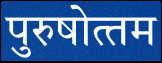
पुरुषोत्‍तम